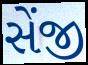
સેંજી